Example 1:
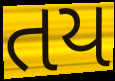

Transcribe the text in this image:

તય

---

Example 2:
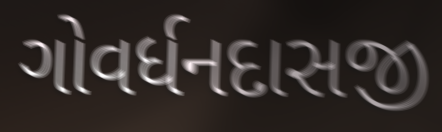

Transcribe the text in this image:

ગોવર્ધનદાસજી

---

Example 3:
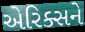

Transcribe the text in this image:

એરિક્સને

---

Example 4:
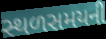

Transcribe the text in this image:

સ્થળસમયની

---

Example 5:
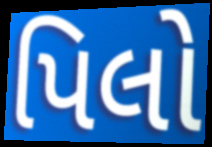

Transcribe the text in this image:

પિલો